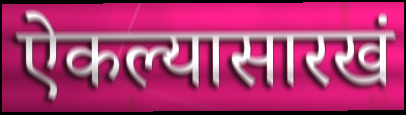
ऐकल्यासारखं